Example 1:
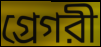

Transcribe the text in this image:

গ্রেগরী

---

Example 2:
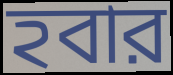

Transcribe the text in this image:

হবার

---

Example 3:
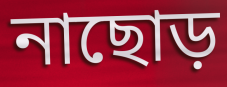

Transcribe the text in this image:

নাছোড়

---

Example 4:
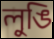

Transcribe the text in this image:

লুঙি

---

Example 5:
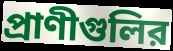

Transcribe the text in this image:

প্রাণীগুলির